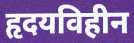
हृदयविहीन